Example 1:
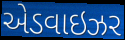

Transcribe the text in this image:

એડવાઇઝર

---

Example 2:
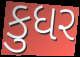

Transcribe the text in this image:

કુધર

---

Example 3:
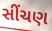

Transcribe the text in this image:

સીંચણ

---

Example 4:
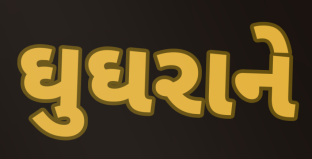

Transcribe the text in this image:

ઘુઘરાને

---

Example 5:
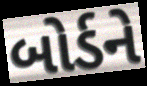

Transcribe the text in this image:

બોર્ડને